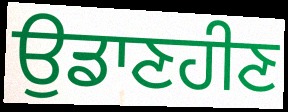
ਉਡਾਣਹੀਣ